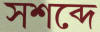
সশব্দে